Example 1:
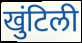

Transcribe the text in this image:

खुंटिली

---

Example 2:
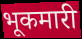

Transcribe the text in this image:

भूकमारी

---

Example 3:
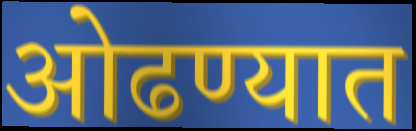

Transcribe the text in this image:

ओढण्यात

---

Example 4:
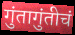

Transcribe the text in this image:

गुंतागुंतीचं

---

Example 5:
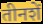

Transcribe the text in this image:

तीनशें